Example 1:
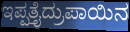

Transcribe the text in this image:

ಇಪ್ಪತ್ತೈದ್ರುಪಾಯಿನ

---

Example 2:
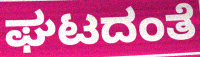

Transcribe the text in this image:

ಘಟದಂತೆ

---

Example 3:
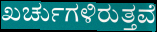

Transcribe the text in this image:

ಖರ್ಚುಗಳಿರುತ್ತವೆ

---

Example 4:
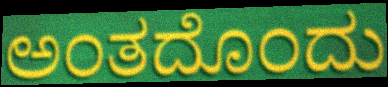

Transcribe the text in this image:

ಅಂತದೊಂದು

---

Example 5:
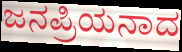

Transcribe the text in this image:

ಜನಪ್ರಿಯನಾದ